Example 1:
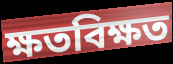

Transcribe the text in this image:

ক্ষতবিক্ষত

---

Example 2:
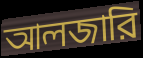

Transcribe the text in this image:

আলজারি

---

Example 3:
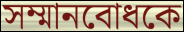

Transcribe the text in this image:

সম্মানবোধকে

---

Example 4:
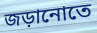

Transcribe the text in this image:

জড়ানোতে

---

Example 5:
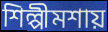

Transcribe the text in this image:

শিল্পীমশায়